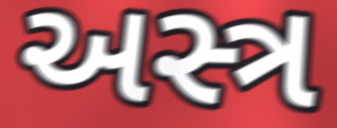
અસ્ત્ર